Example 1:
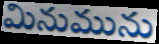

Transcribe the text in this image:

మినుమును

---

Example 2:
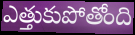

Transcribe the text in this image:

ఎత్తుకుపోతోంది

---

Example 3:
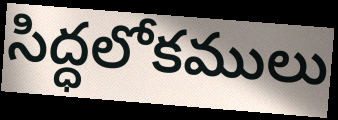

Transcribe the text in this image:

సిద్ధలోకములు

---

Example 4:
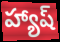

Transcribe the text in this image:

హ్యాష్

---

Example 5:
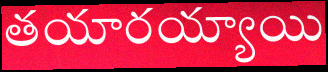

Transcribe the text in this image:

తయారయ్యాయి